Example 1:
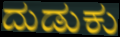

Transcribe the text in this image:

ದುಡುಕು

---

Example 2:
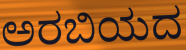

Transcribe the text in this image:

ಅರಬಿಯದ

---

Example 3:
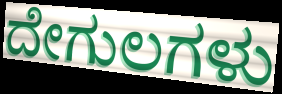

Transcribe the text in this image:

ದೇಗುಲಗಳು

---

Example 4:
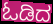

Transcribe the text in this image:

ಓಡಿದ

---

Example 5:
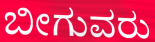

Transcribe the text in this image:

ಬೀಗುವರು